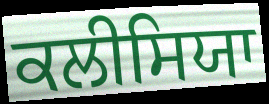
ਕਲੀਸਿਯਾ